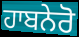
ਹਾਬਨੇਰੋ